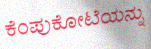
ಕೆಂಪುಕೋಟೆಯನ್ನು